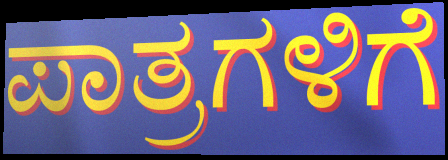
ಪಾತ್ರಗಳಿಗೆ